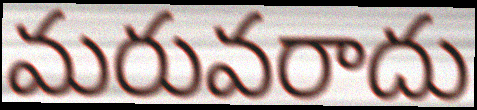
మరువరాదు